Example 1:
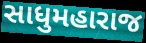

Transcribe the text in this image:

સાધુમહારાજ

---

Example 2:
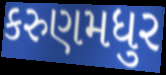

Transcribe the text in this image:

કરુણમધુર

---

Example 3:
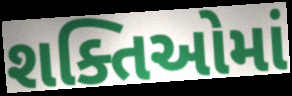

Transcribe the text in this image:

શક્તિઓમાં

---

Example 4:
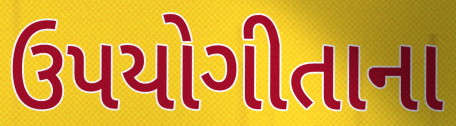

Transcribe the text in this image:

ઉપયોગીતાના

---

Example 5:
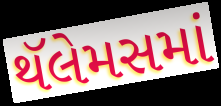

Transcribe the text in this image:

થૅલેમસમાં